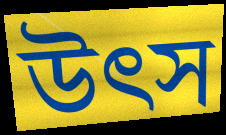
উৎস